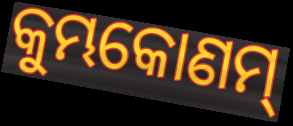
କୁମ୍ଭକୋଣମ୍